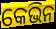
କେଭିନ